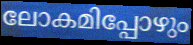
ലോകമിപ്പോഴും